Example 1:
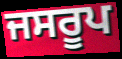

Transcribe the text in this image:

ਜਸਰੂਪ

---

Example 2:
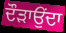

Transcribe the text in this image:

ਦੌੜਾਉਂਦਾ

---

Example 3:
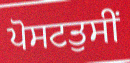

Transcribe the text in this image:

ਪੋਸਟਤੁਸੀਂ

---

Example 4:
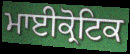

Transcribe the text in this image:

ਮਾਈਕ੍ਰੋਟਿਕ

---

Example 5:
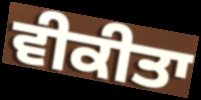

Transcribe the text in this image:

ਵੀਕੀਤਾ